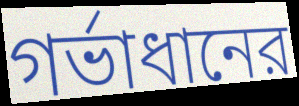
গর্ভাধানের